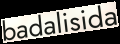
badalisida